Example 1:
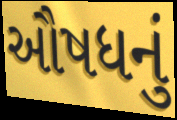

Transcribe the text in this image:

ઔષધનું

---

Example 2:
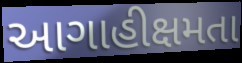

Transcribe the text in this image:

આગાહીક્ષમતા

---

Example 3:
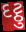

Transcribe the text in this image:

દટ્ઠુ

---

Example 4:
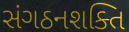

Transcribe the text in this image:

સંગઠનશક્તિ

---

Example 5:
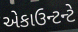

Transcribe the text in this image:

એકાઉન્ટન્ટે